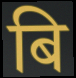
बि